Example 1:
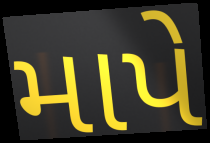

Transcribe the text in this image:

માપે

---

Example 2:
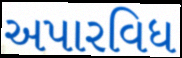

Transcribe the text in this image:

અપારવિધ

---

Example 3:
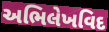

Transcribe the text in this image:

અભિલેખવિદ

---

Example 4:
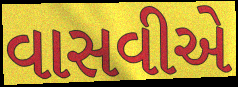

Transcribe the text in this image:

વાસવીએ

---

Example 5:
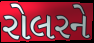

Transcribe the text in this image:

રોલરને